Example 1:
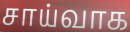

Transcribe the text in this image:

சாய்வாக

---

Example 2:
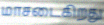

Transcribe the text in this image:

மாசடைகிறது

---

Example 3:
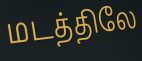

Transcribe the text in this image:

மடத்திலே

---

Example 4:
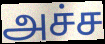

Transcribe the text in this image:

அச்ச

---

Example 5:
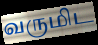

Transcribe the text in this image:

வருமிட